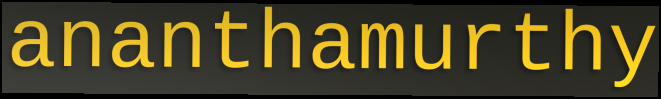
ananthamurthy